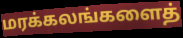
மரக்கலங்களைத்